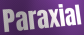
Paraxial